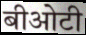
बीओटी